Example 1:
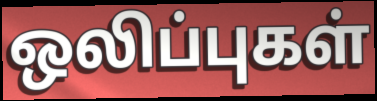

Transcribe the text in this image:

ஒலிப்புகள்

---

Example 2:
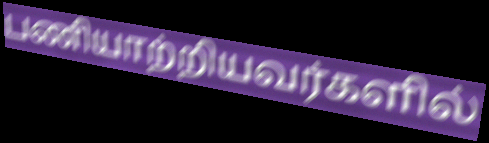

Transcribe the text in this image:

பணியாற்றியவர்களில்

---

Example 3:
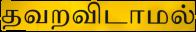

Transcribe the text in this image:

தவறவிடாமல்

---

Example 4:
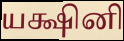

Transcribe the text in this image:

யக்ஷினி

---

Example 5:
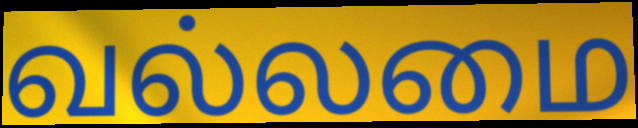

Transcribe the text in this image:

வல்லமை